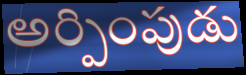
అర్పింపుడు